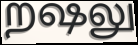
றஷலு